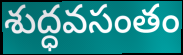
శుద్ధవసంతం